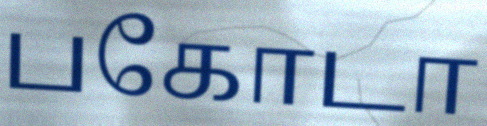
பகோடா